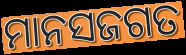
ମାନସଜଗତ